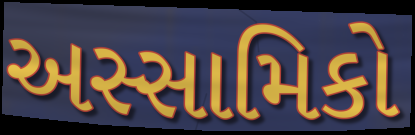
અસ્સામિકો